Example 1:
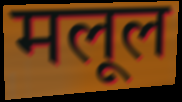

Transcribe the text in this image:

मलूल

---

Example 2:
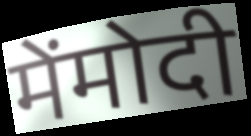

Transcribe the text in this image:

मेंमोदी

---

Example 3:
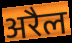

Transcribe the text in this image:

अरैल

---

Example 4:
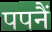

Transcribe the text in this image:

पपनैं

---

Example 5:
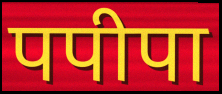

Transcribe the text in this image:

पपीपा